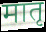
मातृ